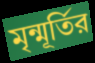
মৃন্মূর্তির